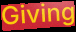
Giving